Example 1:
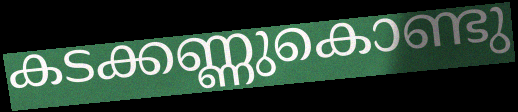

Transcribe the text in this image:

കടക്കണ്ണുകൊണ്ടു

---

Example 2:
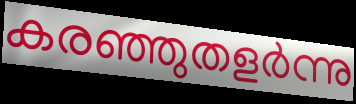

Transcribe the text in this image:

കരഞ്ഞുതളർന്നു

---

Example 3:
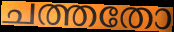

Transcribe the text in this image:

ചത്തതോ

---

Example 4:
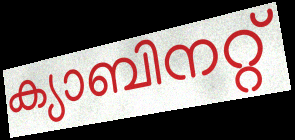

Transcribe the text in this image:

ക്യാബിനറ്റ്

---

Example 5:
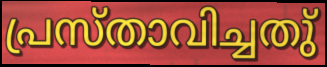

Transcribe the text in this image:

പ്രസ്താവിച്ചതു്